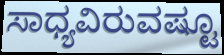
ಸಾಧ್ಯವಿರುವಷ್ಟೂ